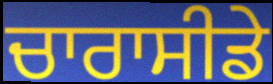
ਚਾਰਾਸੀਡੇ